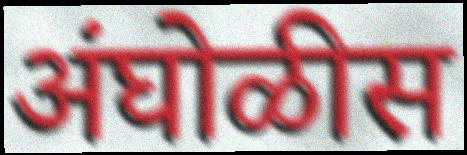
अंघोळीस